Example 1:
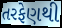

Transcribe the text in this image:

તરફેણથી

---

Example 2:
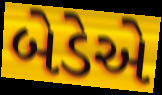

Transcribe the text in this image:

બેડેએ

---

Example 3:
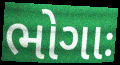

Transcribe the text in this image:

ભોગાઃ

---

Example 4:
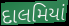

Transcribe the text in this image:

દાલમિયાં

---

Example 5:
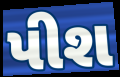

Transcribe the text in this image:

પીશ